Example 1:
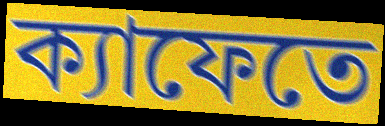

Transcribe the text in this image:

ক্যাফেতে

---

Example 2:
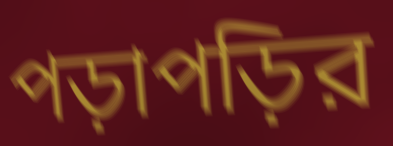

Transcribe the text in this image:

পড়াপড়ির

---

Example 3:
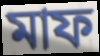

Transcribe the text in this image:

মাফ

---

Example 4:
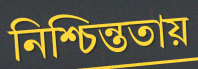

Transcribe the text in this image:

নিশ্চিন্ততায়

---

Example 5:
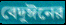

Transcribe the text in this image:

বেদুঈনের